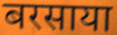
बरसाया